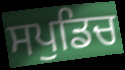
ਸਪੁਡਿਚ